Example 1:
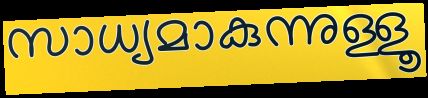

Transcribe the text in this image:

സാധ്യമാകുന്നുള്ളൂ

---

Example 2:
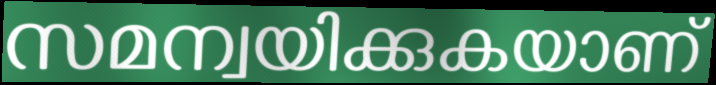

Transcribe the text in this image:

സമന്വയിക്കുകയാണ്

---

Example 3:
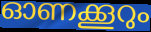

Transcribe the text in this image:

ഓണക്കൂറും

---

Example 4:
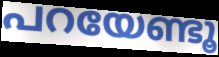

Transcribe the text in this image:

പറയേണ്ടൂ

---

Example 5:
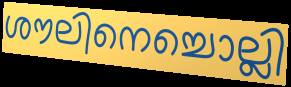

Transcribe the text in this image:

ശൗലിനെച്ചൊല്ലി